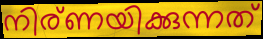
നിര്ണയിക്കുന്നത്